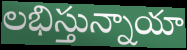
లభిస్తున్నాయా